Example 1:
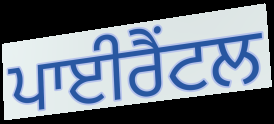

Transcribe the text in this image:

ਪਾਈਰੈਂਟਲ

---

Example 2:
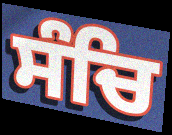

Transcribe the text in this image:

ਸੰਚਿ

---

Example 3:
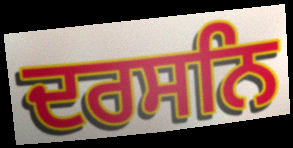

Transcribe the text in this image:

ਦਰਸਨਿ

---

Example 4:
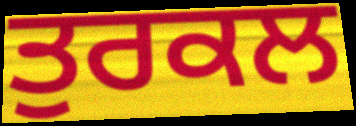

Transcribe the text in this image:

ਤੁਰਕਲ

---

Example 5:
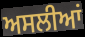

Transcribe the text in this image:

ਅਸਲੀਆਂ